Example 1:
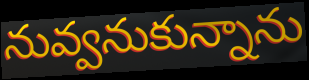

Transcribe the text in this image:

నువ్వనుకున్నాను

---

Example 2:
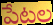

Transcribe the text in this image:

పేటల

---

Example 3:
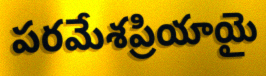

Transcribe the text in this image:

పరమేశప్రియాయై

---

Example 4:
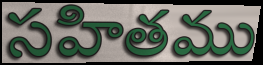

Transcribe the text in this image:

సహితము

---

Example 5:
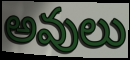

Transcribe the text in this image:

అవులు